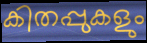
കിതപ്പുകളും